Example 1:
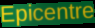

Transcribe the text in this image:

Epicentre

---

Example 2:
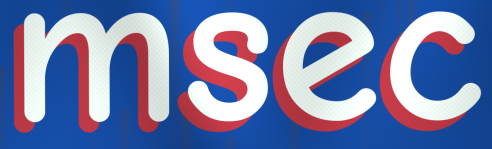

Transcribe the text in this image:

msec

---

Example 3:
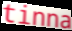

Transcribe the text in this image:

tinna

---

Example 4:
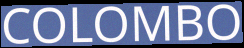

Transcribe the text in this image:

COLOMBO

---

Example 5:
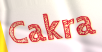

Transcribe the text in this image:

Cakra